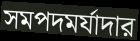
সমপদমর্যাদার